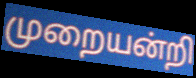
முறையன்றி